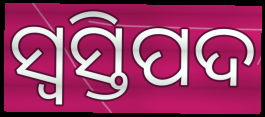
ସ୍ବସ୍ତିପଦ